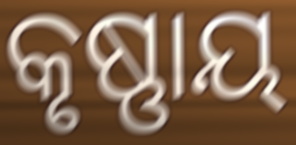
କୃଷ୍ଣାୟ